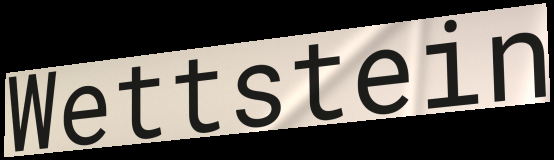
Wettstein